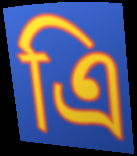
এি